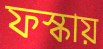
ফস্কায়